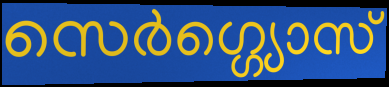
സെർഗ്ഗ്യൊസ്